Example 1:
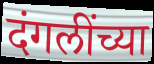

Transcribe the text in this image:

दंगलींच्या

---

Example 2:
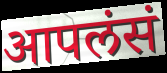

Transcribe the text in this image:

आपलंसं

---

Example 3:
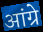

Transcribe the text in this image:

आंग्रे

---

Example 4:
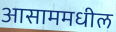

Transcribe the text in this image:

आसाममधील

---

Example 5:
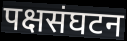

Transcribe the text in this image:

पक्षसंघटन